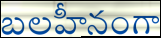
బలహీనంగా